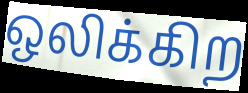
ஒலிக்கிற